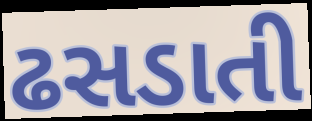
ઢસડાતી